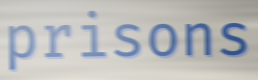
prisons